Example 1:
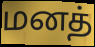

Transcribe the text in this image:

மனத்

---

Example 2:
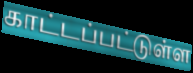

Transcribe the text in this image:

காட்டப்பட்டுள்ள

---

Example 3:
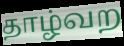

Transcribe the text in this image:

தாழ்வற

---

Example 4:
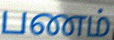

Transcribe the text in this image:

பணம்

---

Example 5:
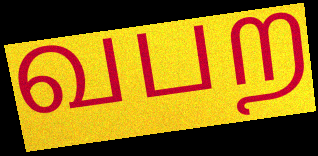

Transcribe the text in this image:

வபற